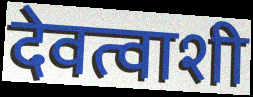
देवत्वाशी